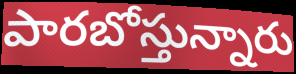
పారబోస్తున్నారు